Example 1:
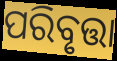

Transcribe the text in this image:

ପରିବୃତ୍ତା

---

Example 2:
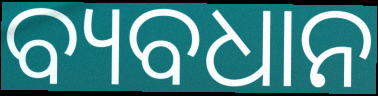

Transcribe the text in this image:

ବ୍ୟବଧାନ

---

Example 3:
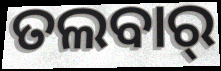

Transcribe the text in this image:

ତଲବାର୍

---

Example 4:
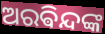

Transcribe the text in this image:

ଅରଵିନ୍ଦଙ୍କ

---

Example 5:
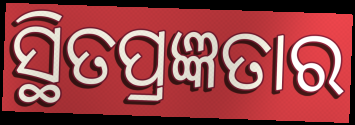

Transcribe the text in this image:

ସ୍ଥିତପ୍ରଜ୍ଞତାର